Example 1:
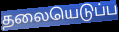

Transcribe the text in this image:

தலையெடுப்ப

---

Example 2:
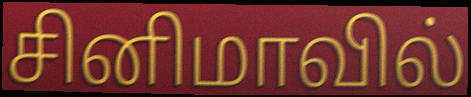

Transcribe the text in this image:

சினிமாவில்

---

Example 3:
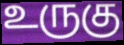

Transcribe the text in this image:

உருகு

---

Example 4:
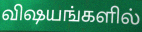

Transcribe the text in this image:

விஷயங்களில்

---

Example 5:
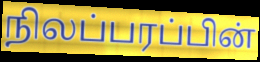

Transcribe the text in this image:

நிலப்பரப்பின்